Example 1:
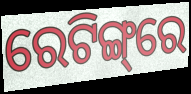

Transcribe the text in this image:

ରେଟିଙ୍ଗ୍‌ରେ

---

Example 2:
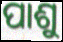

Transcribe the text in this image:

ପାଶୁ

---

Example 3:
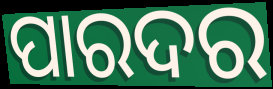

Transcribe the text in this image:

ପାରଦର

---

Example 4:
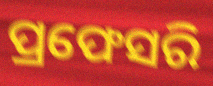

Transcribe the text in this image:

ପ୍ରଫେସରି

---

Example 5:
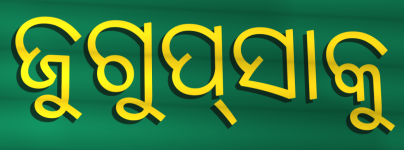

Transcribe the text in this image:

ଜୁଗୁପ୍‍ସାକୁ